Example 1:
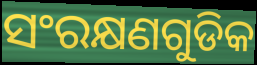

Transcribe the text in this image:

ସଂରକ୍ଷଣଗୁଡିକ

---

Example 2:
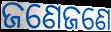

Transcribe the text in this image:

ଜଣେଜଣେ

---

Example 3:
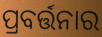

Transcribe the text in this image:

ପ୍ରବର୍ତ୍ତନାର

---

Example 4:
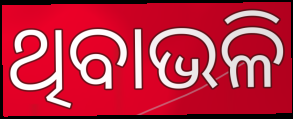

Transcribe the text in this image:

ଥିବାଭଳି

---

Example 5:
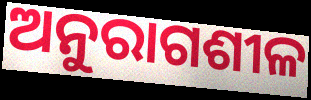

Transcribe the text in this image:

ଅନୁରାଗଶୀଳ